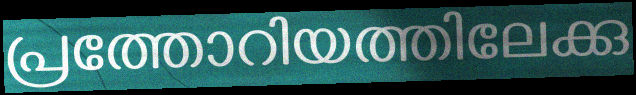
പ്രത്തോറിയത്തിലേക്കു